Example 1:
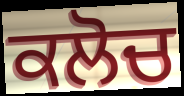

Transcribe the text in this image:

ਕਲੋਚ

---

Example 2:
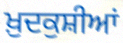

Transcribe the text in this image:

ਖ਼ੁਦਕੁਸ਼ੀਆਂ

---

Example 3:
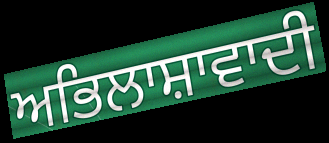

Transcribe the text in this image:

ਅਭਿਲਾਸ਼ਾਵਾਦੀ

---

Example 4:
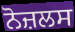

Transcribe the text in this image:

ਨੋਜ਼ਲਸ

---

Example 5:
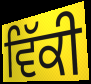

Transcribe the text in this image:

ਵਿੱਕੀ